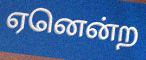
ஏனென்ற